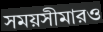
সময়সীমারও